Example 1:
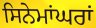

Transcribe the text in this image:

ਸਿਨੇਮਾਂਘਰਾਂ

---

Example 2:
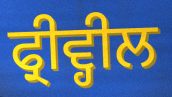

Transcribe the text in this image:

ਫ੍ਰੀਵ੍ਹੀਲ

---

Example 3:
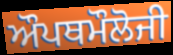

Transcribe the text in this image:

ਔਪਥਮੌਲੋਜੀ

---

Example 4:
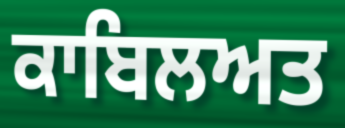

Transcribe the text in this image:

ਕਾਬਿਲਅਤ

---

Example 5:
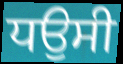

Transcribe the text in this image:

ਧਉਸੀ